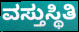
ವಸ್ತುಸ್ಥಿತಿ